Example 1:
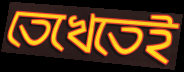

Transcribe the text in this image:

তেখেতেই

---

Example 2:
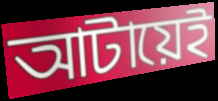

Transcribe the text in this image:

আটায়েই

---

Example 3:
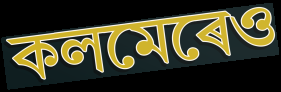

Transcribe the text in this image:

কলমেৰেও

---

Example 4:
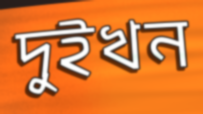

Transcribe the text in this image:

দুইখন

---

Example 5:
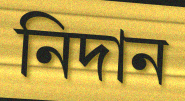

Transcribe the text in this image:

নিদান